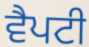
ਵੈਪਟੀ